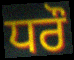
ਧਰੌ